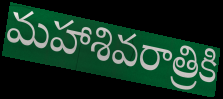
మహాశివరాత్రికి